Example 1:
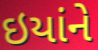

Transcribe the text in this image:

ઇયાંને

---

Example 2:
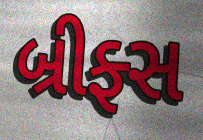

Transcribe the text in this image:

બ્રીફ્સ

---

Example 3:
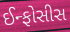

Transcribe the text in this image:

ઈન્ફોસીસ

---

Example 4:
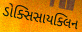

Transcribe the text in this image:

ડોક્સિસાયક્લિન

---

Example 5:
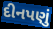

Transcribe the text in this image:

દીનપણું